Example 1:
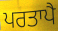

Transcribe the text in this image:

ਪਰਤਾਪੈ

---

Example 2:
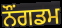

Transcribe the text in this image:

ਨੌਂਗਡਮ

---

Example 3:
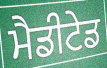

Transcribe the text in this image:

ਮੈਡੀਟੇਡ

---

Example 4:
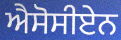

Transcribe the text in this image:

ਐਸੋਸੀਏਨ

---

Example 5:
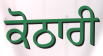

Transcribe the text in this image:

ਕੋਠਾਰੀ